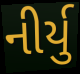
નીર્યુ